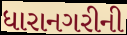
ધારાનગરીની